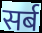
सर्ब